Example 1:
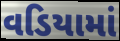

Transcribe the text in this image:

વડિયામાં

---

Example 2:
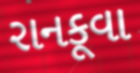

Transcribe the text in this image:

રાનકૂવા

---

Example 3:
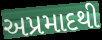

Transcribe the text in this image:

અપ્રમાદથી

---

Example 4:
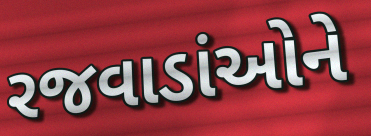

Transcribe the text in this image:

રજવાડાંઓને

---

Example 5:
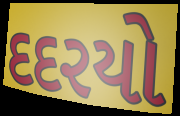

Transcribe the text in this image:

દદરયો